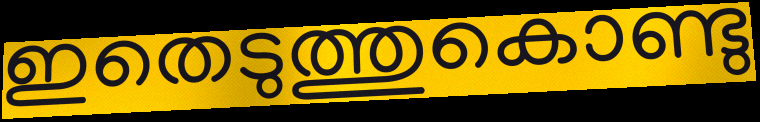
ഇതെടുത്തുകൊണ്ടു